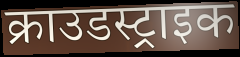
क्राउडस्ट्राइक